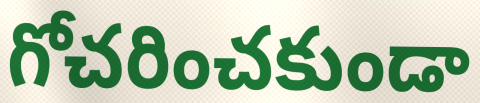
గోచరించకుండా